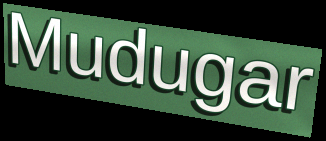
Mudugar